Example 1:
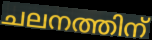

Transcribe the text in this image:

ചലനത്തിന്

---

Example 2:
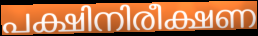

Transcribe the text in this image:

പക്ഷിനിരീക്ഷണ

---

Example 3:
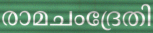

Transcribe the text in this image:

രാമചംദ്രേതി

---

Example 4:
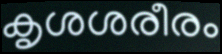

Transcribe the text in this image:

കൃശശരീരം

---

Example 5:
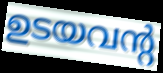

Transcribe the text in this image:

ഉടയവന്റ